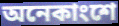
অনেকাংশে